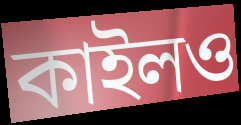
কাইলও